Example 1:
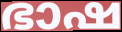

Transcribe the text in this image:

ഭാഷ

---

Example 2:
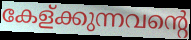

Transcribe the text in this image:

കേള്ക്കുന്നവന്റെ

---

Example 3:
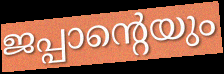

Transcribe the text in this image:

ജപ്പാന്റെയും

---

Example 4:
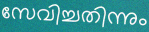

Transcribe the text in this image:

സേവിച്ചതിന്നും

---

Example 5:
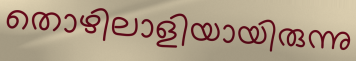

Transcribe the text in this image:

തൊഴിലാളിയായിരുന്നു